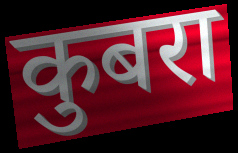
कुबरा